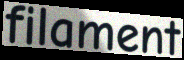
filament